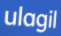
ulagil